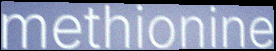
methionine